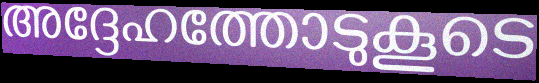
അദ്ദേഹത്തോടുകൂടെ